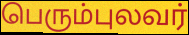
பெரும்புலவர்